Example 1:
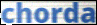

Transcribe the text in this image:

chorda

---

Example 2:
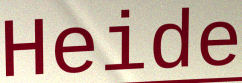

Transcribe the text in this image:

Heide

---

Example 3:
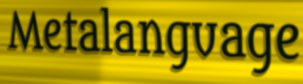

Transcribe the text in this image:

Metalanguage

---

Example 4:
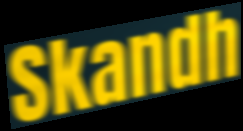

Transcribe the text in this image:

Skandh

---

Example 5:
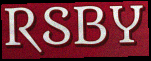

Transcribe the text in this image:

RSBY